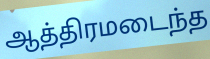
ஆத்திரமடைந்த